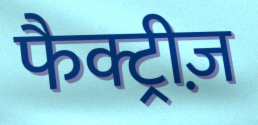
फैक्ट्रीज़